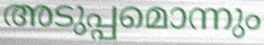
അടുപ്പമൊന്നും